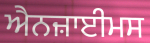
ਐਨਜ਼ਾਈਮਸ